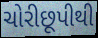
ચોરીછૂપીથી